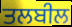
ਤਲਬੀਲ